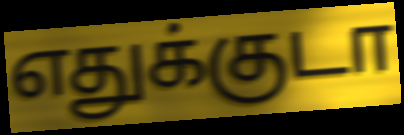
எதுக்குடா